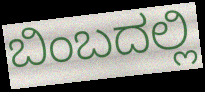
ಬಿಂಬದಲ್ಲಿ